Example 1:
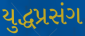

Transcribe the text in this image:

યુદ્ધપ્રસંગ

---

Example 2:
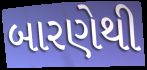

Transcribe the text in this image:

બારણેથી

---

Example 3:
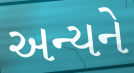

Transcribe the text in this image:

અન્યને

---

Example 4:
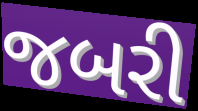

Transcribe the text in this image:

જબરી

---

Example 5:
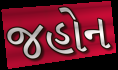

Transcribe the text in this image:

જહોન